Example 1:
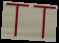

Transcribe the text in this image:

TT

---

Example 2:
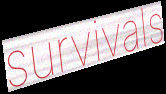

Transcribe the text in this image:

survivals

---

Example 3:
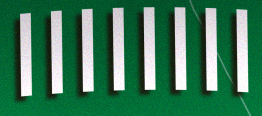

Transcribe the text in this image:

IIIIIIII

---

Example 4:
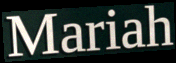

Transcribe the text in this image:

Mariah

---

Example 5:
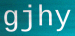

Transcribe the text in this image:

gjhy